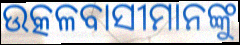
ଉତ୍କଳବାସୀମାନଙ୍କୁ